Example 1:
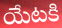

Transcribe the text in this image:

యేటకి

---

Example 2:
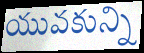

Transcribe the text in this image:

యువకున్ని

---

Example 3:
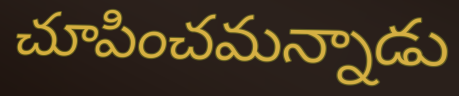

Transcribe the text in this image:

చూపించమన్నాడు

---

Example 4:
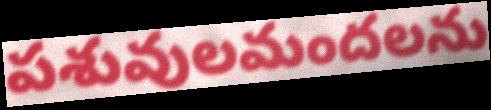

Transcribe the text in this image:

పశువులమందలను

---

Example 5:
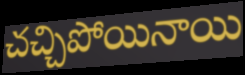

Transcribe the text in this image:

చచ్చిపోయినాయి